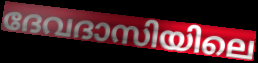
ദേവദാസിയിലെ